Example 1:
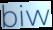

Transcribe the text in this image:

biw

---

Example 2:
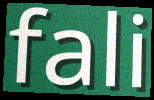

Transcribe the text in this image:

fali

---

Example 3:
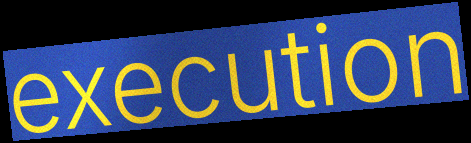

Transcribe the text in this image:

execution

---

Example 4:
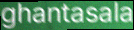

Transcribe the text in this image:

ghantasala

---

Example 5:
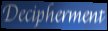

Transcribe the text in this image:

Decipherment